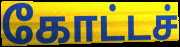
கோட்டச்